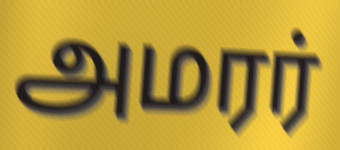
அமரர்